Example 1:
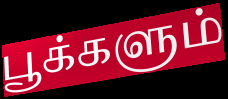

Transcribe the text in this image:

பூக்களும்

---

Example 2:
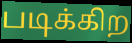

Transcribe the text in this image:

படிக்கிற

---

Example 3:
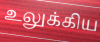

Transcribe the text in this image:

உலுக்கிய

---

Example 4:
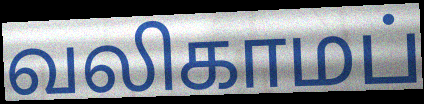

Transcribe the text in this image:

வலிகாமப்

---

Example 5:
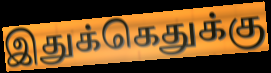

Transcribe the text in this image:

இதுக்கெதுக்கு